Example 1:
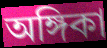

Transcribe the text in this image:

অঙ্গিকা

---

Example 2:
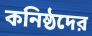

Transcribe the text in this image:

কনিষ্ঠদের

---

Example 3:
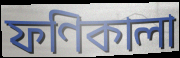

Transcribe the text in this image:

ফণিকালা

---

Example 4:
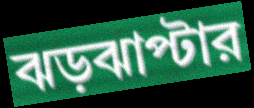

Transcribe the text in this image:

ঝড়ঝাপ্টার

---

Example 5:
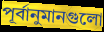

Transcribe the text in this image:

পূর্বানুমানগুলো